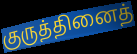
குருத்தினைத்